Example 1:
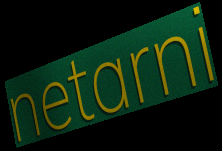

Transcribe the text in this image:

netarni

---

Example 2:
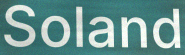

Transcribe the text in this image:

Soland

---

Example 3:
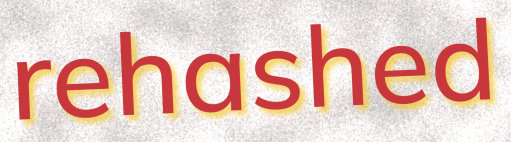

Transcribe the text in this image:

rehashed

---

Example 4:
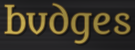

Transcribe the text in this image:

budges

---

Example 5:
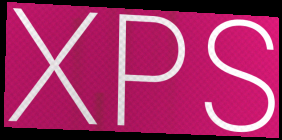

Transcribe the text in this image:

XPS